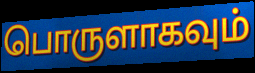
பொருளாகவும்